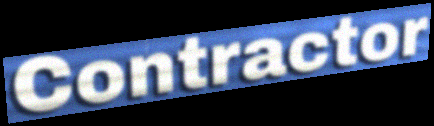
Contractor